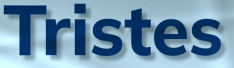
Tristes